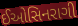
ઈઓસિનરાગી